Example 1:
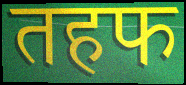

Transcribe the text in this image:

तहफ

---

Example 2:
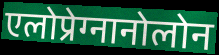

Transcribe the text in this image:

एलोप्रेग्नानोलोन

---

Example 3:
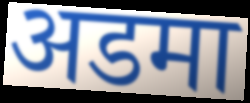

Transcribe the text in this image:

अडमा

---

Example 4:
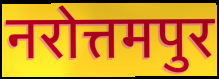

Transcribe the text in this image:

नरोत्तमपुर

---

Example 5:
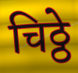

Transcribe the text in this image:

चिठ्ठे